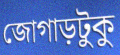
জোগাড়টুকু